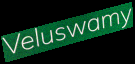
Veluswamy